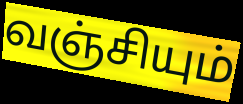
வஞ்சியும்